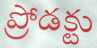
ప్రోడక్టు